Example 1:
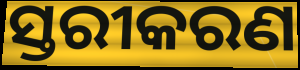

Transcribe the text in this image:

ସ୍ତରୀକରଣ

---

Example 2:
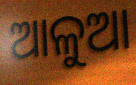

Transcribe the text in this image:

ଆଳୁଆ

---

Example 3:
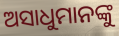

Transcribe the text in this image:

ଅସାଧୁମାନଙ୍କୁ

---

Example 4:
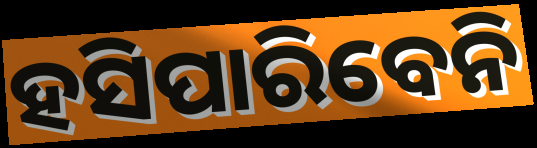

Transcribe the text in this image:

ହସିପାରିବେନି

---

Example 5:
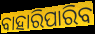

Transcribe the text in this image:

ବାହାରିପାରିବ